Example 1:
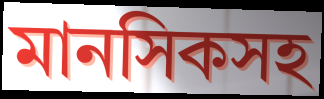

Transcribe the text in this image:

মানসিকসহ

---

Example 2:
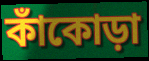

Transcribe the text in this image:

কাঁকোড়া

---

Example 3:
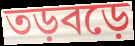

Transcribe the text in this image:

তড়বড়ে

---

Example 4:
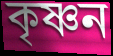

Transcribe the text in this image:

কৃষ্ণন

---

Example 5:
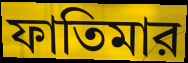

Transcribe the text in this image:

ফাতিমার